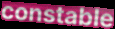
constable